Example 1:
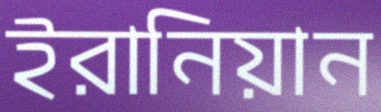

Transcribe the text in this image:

ইরানিয়ান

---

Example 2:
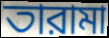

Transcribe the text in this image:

তারামা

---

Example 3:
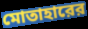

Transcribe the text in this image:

মোতাহারের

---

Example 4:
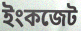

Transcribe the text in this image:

ইংকজেট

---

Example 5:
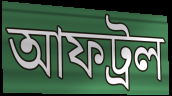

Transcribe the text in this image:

আফট্রল